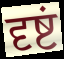
दृष्टं